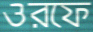
ওরফে